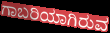
ಗಾಬರಿಯಾಗಿರುವ